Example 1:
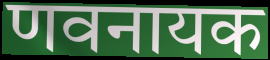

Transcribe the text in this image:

णवनायक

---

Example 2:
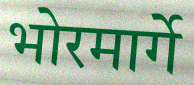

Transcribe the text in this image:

भोरमार्गे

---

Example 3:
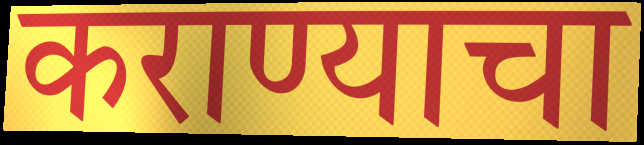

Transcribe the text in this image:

कराण्याचा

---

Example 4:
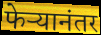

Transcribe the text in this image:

फेऱ्यानंतर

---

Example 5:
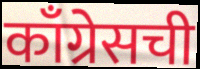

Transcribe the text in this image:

काँग्रेसची